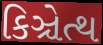
કિઞ્ચેત્થ